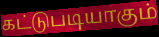
கட்டுபடியாகும்